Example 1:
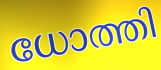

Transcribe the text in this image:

ധോത്തി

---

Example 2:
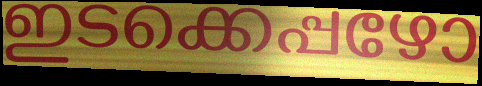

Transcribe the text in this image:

ഇടക്കെപ്പഴോ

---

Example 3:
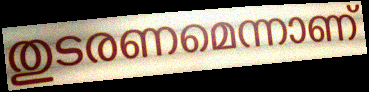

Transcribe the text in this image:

തുടരണമെന്നാണ്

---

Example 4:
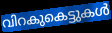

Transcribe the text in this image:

വിറകുകെട്ടുകൾ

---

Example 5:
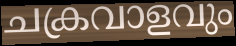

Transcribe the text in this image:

ചക്രവാളവും